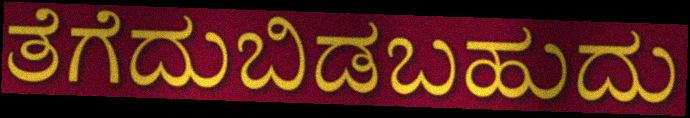
ತೆಗೆದುಬಿಡಬಹುದು